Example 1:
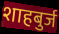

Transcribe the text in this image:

शाहबुर्ज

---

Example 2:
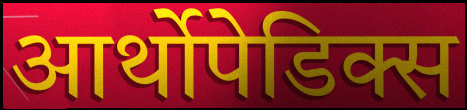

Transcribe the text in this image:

आर्थोपेडिक्स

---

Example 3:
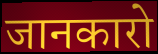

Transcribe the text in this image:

जानकारो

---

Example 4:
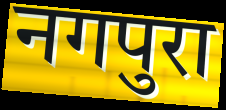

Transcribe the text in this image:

नगपुरा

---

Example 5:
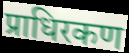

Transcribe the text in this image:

प्राधिरकण